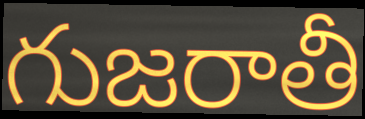
గుజరాతీ